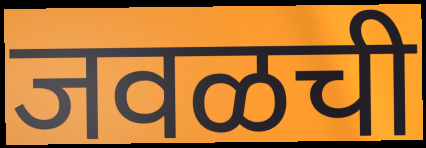
जवळची